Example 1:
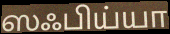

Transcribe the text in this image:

ஸஃபிய்யா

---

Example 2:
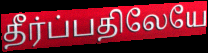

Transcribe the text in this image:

தீர்ப்பதிலேயே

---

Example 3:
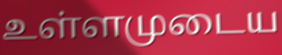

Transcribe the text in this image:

உள்ளமுடைய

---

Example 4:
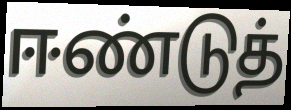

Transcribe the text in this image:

ஈண்டுத்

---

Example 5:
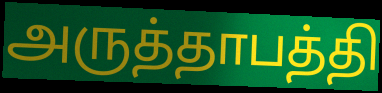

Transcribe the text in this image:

அருத்தாபத்தி